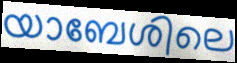
യാബേശിലെ